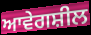
ਆਵੇਗਸ਼ੀਲ